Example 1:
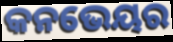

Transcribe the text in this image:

କନଭେୟର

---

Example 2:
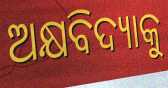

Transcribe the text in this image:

ଅକ୍ଷବିଦ୍ୟାକୁ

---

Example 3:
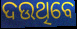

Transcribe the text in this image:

ଦଉଥିବେ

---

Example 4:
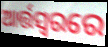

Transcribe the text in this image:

ଆର୍ତ୍ତସ୍ଵରରେ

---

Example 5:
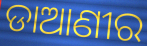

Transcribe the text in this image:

ଡାଆଣୀର